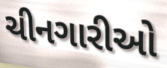
ચીનગારીઓ